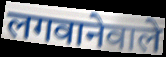
लगवानेवाले